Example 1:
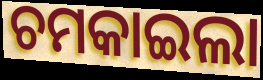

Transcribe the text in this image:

ଚମକାଇଲା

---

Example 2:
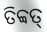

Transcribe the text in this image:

ତିବ୍ବତ୍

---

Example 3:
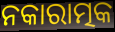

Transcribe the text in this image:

ନକାରାତ୍ମକ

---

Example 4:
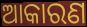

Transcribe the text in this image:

ଆକାରଣ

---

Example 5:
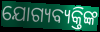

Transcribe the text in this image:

ଯୋଗ୍ୟବ୍ୟକ୍ତିଙ୍କ